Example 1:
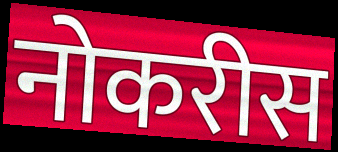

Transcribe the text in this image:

नोकरीस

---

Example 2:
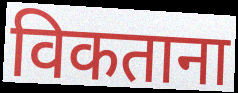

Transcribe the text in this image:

विकताना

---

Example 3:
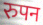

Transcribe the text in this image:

रुपन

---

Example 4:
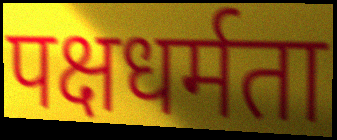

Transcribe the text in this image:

पक्षधर्मता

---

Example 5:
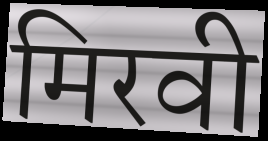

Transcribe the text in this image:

मिरवी